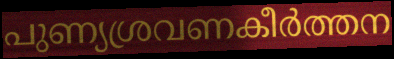
പുണ്യശ്രവണകീർത്തന